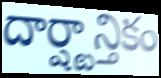
దార్ష్టాన్తికం